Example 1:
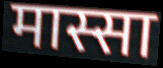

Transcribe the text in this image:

मास्सा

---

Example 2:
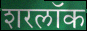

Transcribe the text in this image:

शरलॉक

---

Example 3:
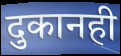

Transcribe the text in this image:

दुकानही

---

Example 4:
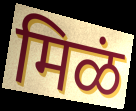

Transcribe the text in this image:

मिळं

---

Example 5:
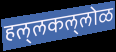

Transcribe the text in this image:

हल्लकल्लोळ